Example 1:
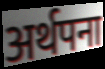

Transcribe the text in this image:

अर्थपना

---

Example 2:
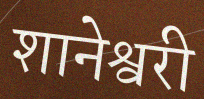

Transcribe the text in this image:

शानेश्वरी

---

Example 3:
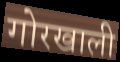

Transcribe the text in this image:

गोरखाली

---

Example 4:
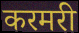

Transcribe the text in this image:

करमरी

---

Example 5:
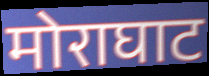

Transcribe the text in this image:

मोराघाट